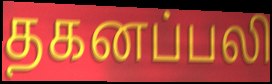
தகனப்பலி